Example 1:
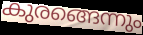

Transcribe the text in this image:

കുരങ്ങെന്നും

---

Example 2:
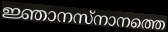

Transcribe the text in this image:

ജ്ഞാനസ്നാനത്തെ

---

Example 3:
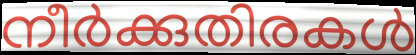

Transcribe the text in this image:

നീർക്കുതിരകൾ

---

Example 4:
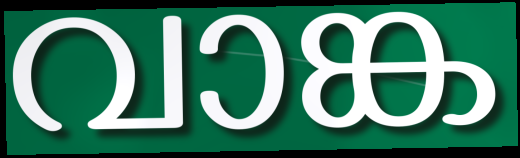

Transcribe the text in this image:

വാങ്ക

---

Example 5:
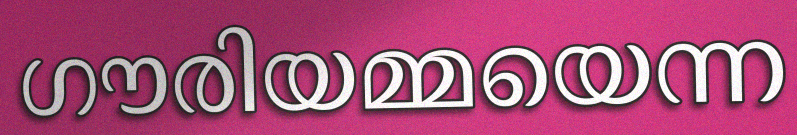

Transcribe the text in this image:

ഗൗരിയമ്മയെന്ന